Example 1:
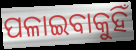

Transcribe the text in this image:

ପଳାଇବାକୁହିଁ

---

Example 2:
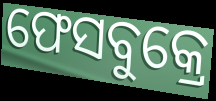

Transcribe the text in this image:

ଫେସବୁକ୍ରେ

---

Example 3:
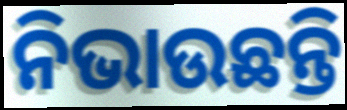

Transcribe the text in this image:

ନିଭାଉଛନ୍ତି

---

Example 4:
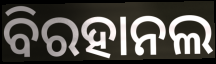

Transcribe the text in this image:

ବିରହାନଲ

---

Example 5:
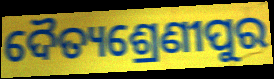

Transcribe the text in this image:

ଦୈତ୍ୟଶ୍ରେଣୀପୁର